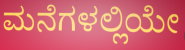
ಮನೆಗಳಲ್ಲಿಯೇ